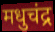
मधुचंद्र